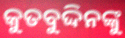
କୁତବୁଦ୍ଦିନଙ୍କୁ